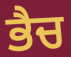
ਭੈਚ